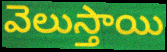
వెలుస్తాయి